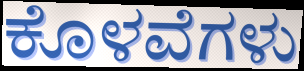
ಕೊಳವೆಗಳು